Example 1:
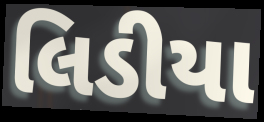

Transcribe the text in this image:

લિડીયા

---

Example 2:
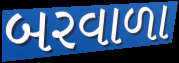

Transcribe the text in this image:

બરવાળા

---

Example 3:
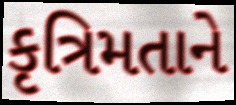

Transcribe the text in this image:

કૃત્રિમતાને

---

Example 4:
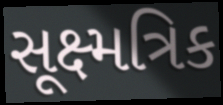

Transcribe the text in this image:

સૂક્ષ્મત્રિક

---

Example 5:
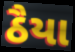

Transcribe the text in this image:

ઠૈયા